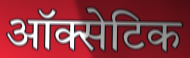
ऑक्सेटिक